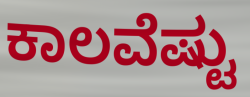
ಕಾಲವೆಷ್ಟು